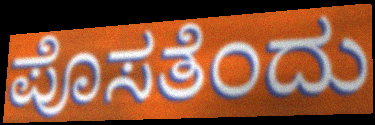
ಪೊಸತೆಂದು